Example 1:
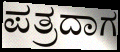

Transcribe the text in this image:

ಪತ್ರದಾಗ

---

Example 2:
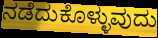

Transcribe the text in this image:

ನಡೆದುಕೊಳ್ಳುವುದು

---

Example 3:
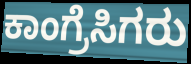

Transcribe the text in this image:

ಕಾಂಗ್ರೆಸಿಗರು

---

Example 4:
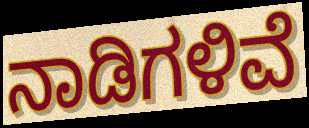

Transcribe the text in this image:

ನಾಡಿಗಳಿವೆ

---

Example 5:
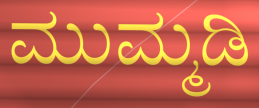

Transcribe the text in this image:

ಮುಮ್ಮಡಿ